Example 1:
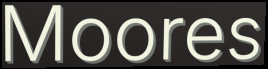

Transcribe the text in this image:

Moores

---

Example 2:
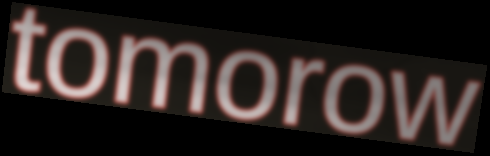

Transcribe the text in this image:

tomorow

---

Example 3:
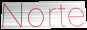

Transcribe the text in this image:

Norte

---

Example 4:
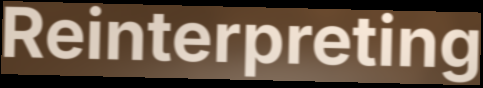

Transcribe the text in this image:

Reinterpreting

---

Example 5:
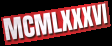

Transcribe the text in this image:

MCMLXXXVI